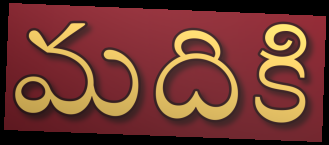
మదికి